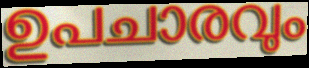
ഉപചാരവും